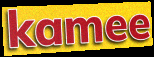
kamee